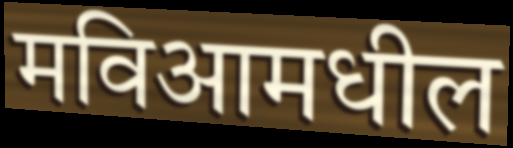
मविआमधील